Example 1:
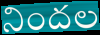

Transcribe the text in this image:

నిందల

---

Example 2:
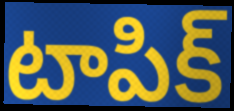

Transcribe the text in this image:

టాపిక్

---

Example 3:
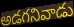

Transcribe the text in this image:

అడగనివాడు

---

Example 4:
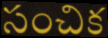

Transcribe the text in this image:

సంచిక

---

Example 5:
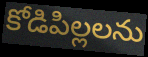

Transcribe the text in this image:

కోడిపిల్లలను